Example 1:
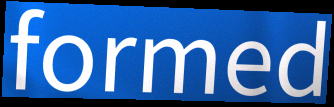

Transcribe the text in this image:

formed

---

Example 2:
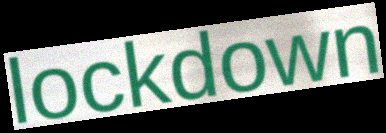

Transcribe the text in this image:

lockdown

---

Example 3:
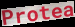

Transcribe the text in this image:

Protea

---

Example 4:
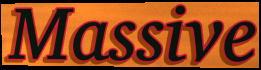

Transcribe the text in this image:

Massive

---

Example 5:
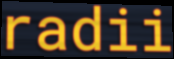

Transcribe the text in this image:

radii